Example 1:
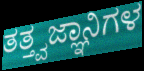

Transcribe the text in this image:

ತತ್ತ್ವಜ್ಞಾನಿಗಳ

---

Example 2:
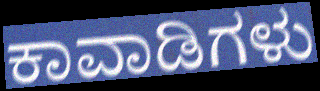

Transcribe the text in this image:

ಕಾವಾಡಿಗಳು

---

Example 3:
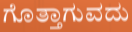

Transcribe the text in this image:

ಗೊತ್ತಾಗುವದು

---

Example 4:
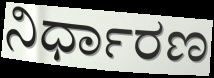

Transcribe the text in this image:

ನಿರ್ಧಾರಣ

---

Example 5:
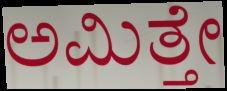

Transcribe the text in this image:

ಅಮಿತ್ತೇ